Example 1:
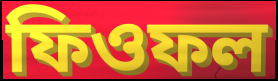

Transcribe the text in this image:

ফিওফল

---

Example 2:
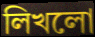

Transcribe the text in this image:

লিখলো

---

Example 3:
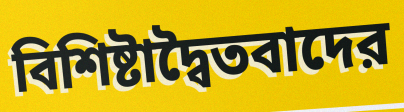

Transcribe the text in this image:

বিশিষ্টাদ্বৈতবাদের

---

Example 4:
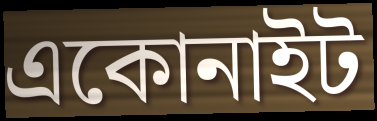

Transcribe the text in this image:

একোনাইট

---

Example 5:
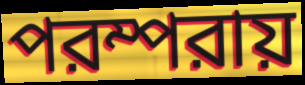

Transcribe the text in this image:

পরম্পরায়